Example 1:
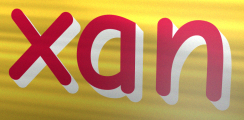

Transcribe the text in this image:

xan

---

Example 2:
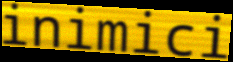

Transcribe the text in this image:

inimici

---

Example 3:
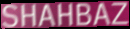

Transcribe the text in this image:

SHAHBAZ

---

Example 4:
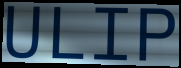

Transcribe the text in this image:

ULIP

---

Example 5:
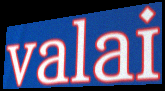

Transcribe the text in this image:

valai